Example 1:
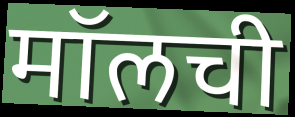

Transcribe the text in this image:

मॉलची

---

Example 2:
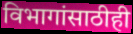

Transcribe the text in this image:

विभागांसाठीही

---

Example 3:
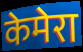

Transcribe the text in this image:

केमेरा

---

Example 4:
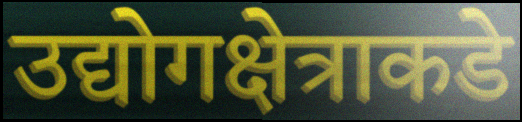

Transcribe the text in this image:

उद्योगक्षेत्राकडे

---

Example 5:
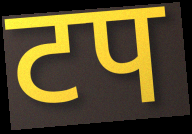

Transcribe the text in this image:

टप